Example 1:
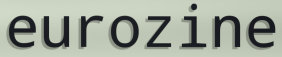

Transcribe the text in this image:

eurozine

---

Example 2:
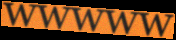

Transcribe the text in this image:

wwwww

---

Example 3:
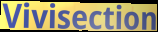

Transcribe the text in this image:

Vivisection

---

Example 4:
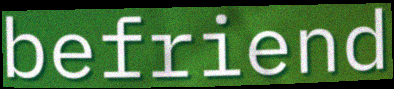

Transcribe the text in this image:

befriend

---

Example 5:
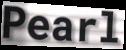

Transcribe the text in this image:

Pearl